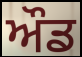
ਔਡ